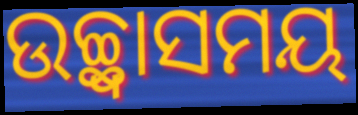
ଉଚ୍ଛ୍ୱାସମୟ